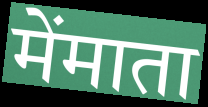
मेंमाता